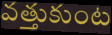
వత్తుకుంట